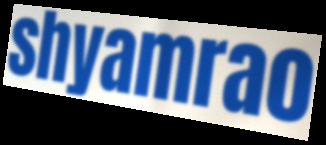
shyamrao